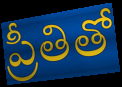
ప్రీతితో